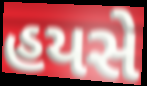
હયસે